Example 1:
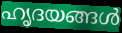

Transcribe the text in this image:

ഹൃദയങ്ങൾ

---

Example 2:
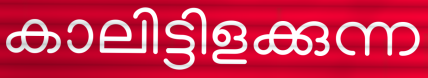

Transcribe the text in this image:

കാലിട്ടിളക്കുന്ന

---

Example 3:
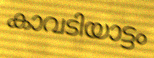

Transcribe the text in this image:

കാവടിയാട്ടം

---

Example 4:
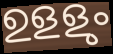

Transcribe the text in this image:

ഉളളും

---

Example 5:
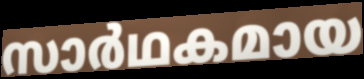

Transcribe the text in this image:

സാർഥകമായ